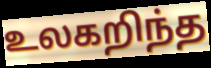
உலகறிந்த